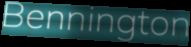
Bennington